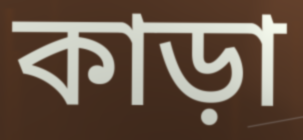
কাড়া